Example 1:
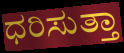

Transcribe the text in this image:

ಧರಿಸುತ್ತಾ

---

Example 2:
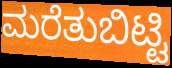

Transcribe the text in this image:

ಮರೆತುಬಿಟ್ಟಿ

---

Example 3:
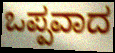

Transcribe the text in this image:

ಒಪ್ಪವಾದ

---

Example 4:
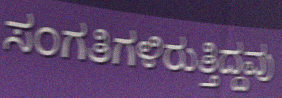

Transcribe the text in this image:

ಸಂಗತಿಗಳಿರುತ್ತಿದ್ದವು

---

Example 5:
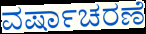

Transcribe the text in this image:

ವರ್ಷಾಚರಣೆ